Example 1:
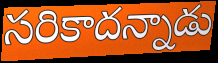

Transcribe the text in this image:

సరికాదన్నాడు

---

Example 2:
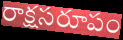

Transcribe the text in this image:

రాక్షసరూపం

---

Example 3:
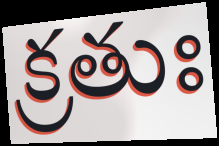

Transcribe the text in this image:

క్రతుః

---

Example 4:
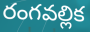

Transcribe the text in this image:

రంగవల్లిక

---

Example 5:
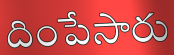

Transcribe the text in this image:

దింపేసారు